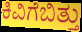
ಕಿವಿಗೆಬಿತ್ತು